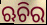
ଋଚିର